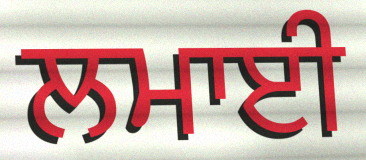
ਲਮਾਈ